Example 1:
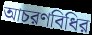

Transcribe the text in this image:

আচরণবিধির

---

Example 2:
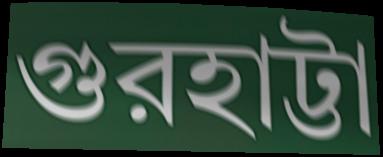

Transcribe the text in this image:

গুরহাট্টা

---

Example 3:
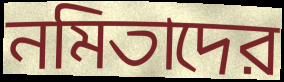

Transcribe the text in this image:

নমিতাদের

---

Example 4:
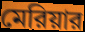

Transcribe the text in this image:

মেরিয়ার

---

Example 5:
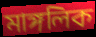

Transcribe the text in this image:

মাঙ্গলিক